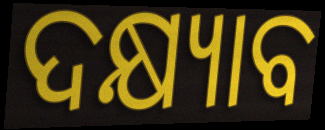
ଦକ୍ଷ୍ୟାବ